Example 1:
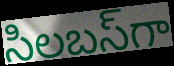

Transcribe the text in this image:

సిలబస్‌గా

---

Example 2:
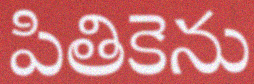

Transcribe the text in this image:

పితికెను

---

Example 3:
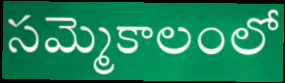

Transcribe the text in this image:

సమ్మెకాలంలో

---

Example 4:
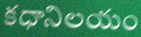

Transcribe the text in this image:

కధానిలయం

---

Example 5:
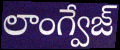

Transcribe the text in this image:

లాంగ్వేజ్